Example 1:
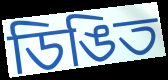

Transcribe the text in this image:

ডিঙিত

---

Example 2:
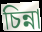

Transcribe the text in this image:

চিন্না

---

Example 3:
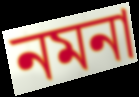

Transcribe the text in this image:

নমনা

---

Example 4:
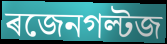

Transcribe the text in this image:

ৰজেনগল্টজ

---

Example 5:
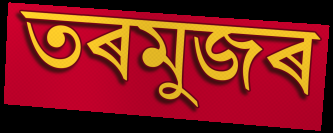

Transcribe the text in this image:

তৰমুজৰ